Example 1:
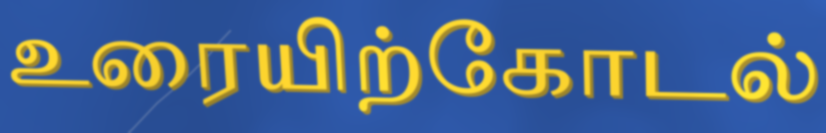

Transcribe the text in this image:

உரையிற்கோடல்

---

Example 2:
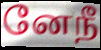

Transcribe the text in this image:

னேநீ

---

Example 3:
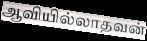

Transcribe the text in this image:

ஆவியில்லாதவன்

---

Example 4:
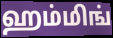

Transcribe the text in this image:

ஹம்மிங்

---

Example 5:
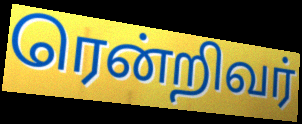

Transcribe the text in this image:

ரென்றிவர்